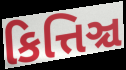
કિત્તિઞ્ચ